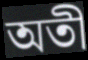
অতী